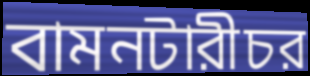
বামনটারীচর